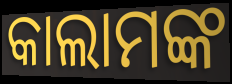
କାଲାମଙ୍କ